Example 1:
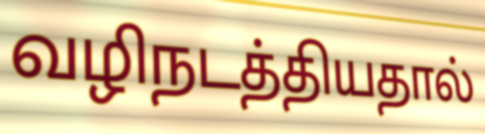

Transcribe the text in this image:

வழிநடத்தியதால்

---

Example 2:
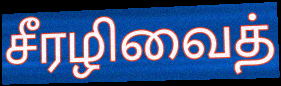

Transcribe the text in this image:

சீரழிவைத்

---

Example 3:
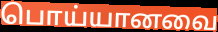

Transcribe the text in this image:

பொய்யானவை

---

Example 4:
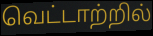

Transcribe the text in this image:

வெட்டாற்றில்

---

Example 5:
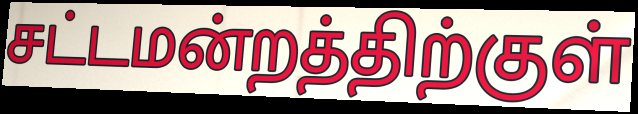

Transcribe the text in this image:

சட்டமன்றத்திற்குள்